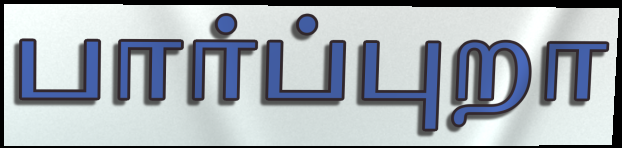
பார்ப்புறா